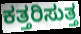
ಕತ್ತರಿಸುತ್ತ